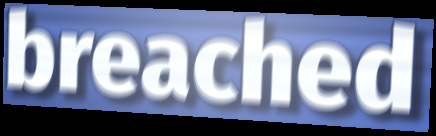
breached